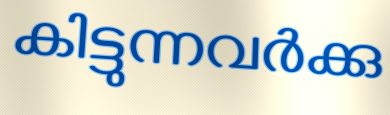
കിട്ടുന്നവർക്കു